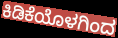
ಕಿಡಿಕೆಯೊಳಗಿಂದ